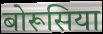
बोरूसिया